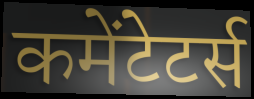
कमेंटेटर्स